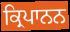
ਕ੍ਰਿਪਾਨਨ